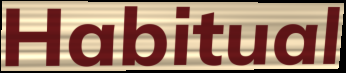
Habitual